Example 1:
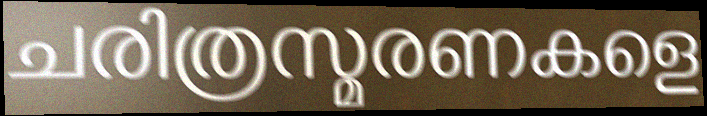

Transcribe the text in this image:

ചരിത്രസ്മരണകളെ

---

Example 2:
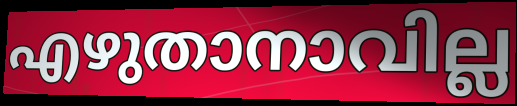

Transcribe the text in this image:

എഴുതാനാവില്ല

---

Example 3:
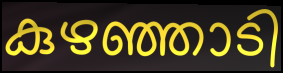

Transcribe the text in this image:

കുഴഞ്ഞാടി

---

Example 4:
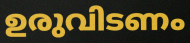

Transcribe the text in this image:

ഉരുവിടണം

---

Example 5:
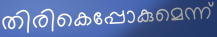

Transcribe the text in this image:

തിരികെപ്പോകുമെന്ന്